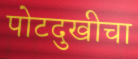
पोटदुखीचा